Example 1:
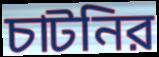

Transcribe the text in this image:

চাটনির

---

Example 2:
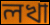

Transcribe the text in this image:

লখা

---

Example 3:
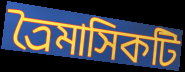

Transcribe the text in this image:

ত্রৈমাসিকটি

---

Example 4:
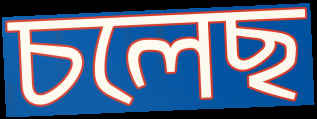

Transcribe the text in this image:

চলেছ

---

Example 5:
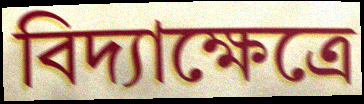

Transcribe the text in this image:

বিদ্যাক্ষেত্রে